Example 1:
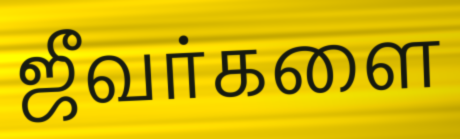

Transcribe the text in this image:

ஜீவர்களை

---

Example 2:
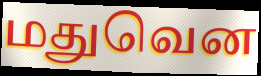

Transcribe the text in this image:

மதுவென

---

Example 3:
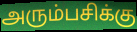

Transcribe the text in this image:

அரும்பசிக்கு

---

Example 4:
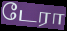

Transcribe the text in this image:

டேரா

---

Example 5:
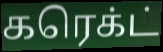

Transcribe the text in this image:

கரெக்ட்